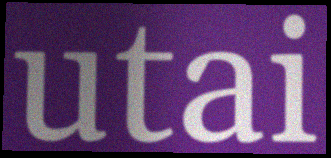
utai